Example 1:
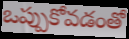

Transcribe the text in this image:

ఒప్పుకోవడంతో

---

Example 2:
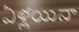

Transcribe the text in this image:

ఏళ్లయినా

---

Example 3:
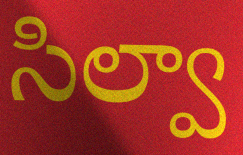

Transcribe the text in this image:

సిల్వా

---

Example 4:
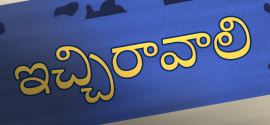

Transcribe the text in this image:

ఇచ్చిరావాలి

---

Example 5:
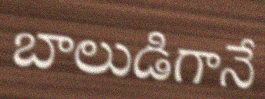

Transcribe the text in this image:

బాలుడిగానే